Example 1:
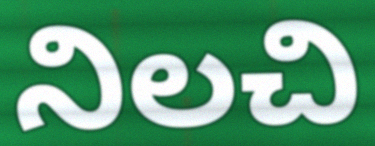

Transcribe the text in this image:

నిలచి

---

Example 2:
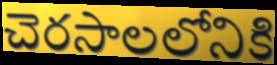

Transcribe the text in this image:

చెరసాలలోనికి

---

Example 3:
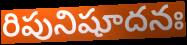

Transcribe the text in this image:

రిపునిషూదనః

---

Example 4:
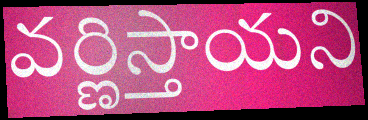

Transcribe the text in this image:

వర్ణిస్తాయని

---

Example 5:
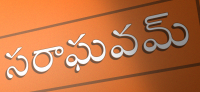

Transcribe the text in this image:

సరాఘవమ్